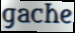
gache